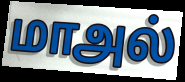
மாஅல்